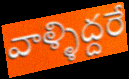
వాళ్ళిద్దరే